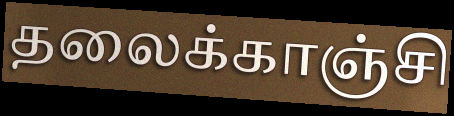
தலைக்காஞ்சி